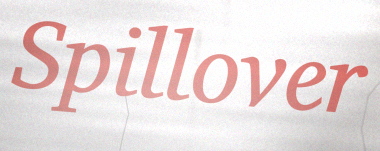
Spillover